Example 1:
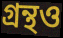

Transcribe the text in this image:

গ্রন্থও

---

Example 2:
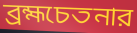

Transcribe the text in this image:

ব্রহ্মচেতনার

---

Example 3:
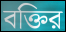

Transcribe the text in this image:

বক্তির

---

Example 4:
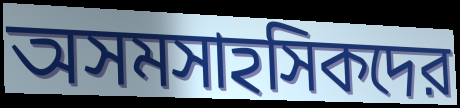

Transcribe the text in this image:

অসমসাহসিকদের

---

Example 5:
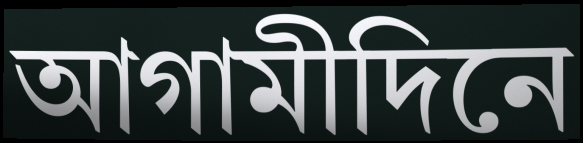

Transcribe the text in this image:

আগামীদিনে